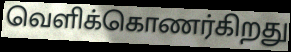
வெளிக்கொணர்கிறது